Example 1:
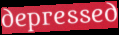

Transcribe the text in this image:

depressed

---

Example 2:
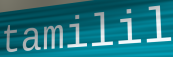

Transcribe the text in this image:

tamilil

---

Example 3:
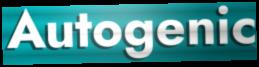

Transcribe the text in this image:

Autogenic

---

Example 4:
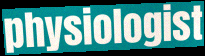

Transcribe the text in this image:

physiologist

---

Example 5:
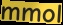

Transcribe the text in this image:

mmol